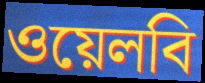
ওয়েলবি